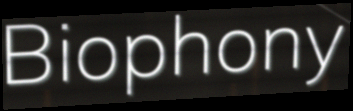
Biophony